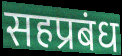
सहप्रबंध